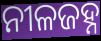
ନୀଳଜହ୍ନ